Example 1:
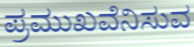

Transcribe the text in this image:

ಪ್ರಮುಖವೆನಿಸುವ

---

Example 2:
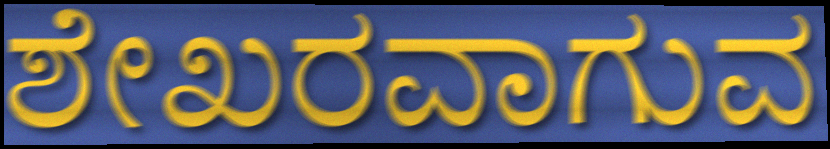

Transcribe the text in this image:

ಶೇಖರವಾಗುವ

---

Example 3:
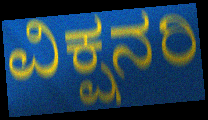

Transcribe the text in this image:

ವಿಕ್ಷನರಿ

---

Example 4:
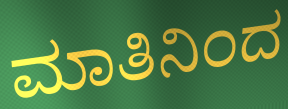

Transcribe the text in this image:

ಮಾತಿನಿಂದ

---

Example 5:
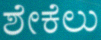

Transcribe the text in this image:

ಶೇಕೆಲು